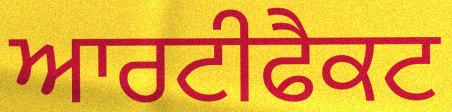
ਆਰਟੀਫੈਕਟ